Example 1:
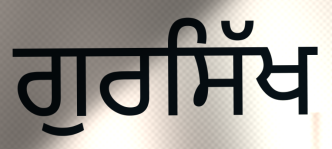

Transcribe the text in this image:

ਗੁਰਸਿੱਖ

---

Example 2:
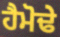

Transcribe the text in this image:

ਹੈਮੋਢੇ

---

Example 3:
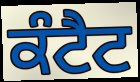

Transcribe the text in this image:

ਕੰਟੈਟ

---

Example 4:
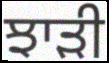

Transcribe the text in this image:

ਝਾੜੀ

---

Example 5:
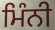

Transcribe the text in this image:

ਮਿੰਨੀ